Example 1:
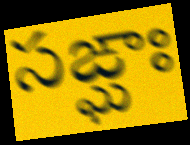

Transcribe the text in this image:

సఙ్ఘాః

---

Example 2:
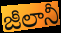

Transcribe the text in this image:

జీలానీ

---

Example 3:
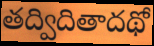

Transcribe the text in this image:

తద్విదితాదథో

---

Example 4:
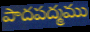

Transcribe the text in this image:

పాదపద్మము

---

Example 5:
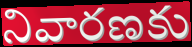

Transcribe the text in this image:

నివారణకు